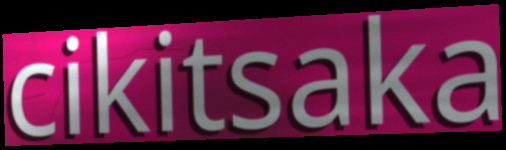
cikitsaka